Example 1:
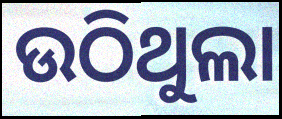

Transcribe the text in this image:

ଉଠିଥୁଲା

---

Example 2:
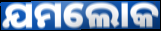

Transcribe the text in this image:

ଯମଲୋକ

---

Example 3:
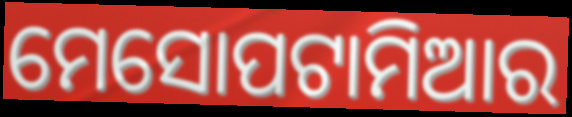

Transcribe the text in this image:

ମେସୋପଟାମିଆର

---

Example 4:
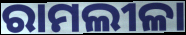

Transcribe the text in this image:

ରାମଲୀଳା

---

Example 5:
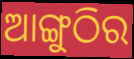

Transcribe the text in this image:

ଆଙ୍ଗୁଠିର